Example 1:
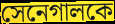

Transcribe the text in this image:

সেনেগালকে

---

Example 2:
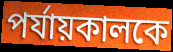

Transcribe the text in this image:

পর্যায়কালকে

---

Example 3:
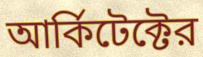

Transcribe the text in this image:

আর্কিটেক্টের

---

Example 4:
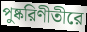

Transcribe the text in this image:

পুষ্করিণীতীরে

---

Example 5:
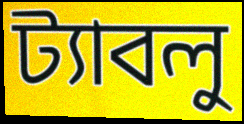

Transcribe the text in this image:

ট্যাবলু